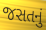
જસતનું